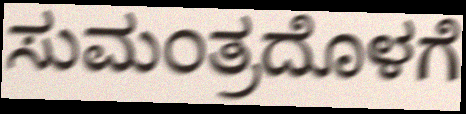
ಸುಮಂತ್ರದೊಳಗೆ